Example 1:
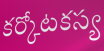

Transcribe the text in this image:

కర్కోటకస్య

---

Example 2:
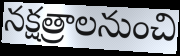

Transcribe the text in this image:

నక్షత్రాలనుంచి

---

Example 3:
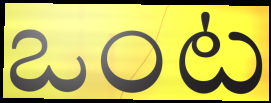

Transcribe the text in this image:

ఒంట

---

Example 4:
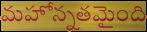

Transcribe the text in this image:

మహోన్నతమైంది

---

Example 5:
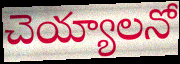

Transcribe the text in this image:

చెయ్యాలనో